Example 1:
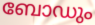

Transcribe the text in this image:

ബോഡും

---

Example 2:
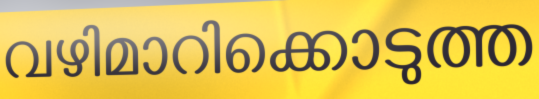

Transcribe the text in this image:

വഴിമാറിക്കൊടുത്ത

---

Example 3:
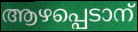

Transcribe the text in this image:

ആഴപ്പെടാന്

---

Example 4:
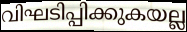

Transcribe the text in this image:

വിഘടിപ്പിക്കുകയല്ല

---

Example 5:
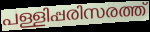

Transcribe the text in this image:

പള്ളിപ്പരിസരത്ത്